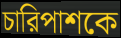
চারিপাশকে